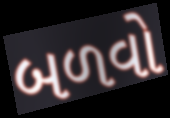
બળવો